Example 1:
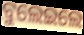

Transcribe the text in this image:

ବୁଲେଇଲେ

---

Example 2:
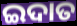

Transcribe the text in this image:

ଇଦାତ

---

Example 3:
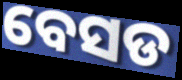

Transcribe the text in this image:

ବେସଡ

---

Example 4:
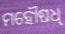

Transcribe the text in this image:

ମହୌଷଧ୍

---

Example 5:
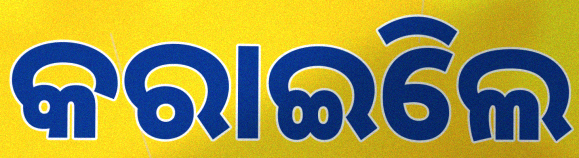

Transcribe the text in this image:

କରାଇିଲେ